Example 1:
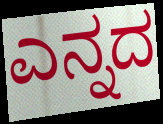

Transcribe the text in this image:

ಎನ್ನದ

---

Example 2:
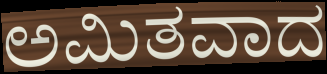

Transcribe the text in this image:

ಅಮಿತವಾದ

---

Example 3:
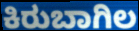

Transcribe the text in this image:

ಕಿರುಬಾಗಿಲ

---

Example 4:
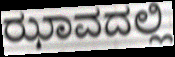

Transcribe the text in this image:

ಝಾವದಲ್ಲಿ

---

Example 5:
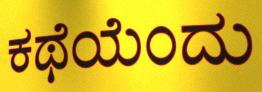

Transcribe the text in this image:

ಕಥೆಯೆಂದು